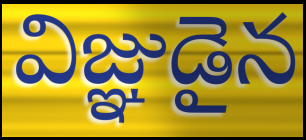
విజ్ఞుడైన